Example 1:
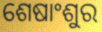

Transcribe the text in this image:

ଶେଷାଂଶୁର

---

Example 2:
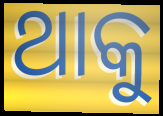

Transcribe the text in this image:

ଥାକୁ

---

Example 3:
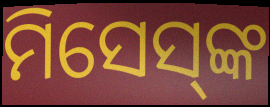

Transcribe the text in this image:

ମିସେସ୍‌ଙ୍କ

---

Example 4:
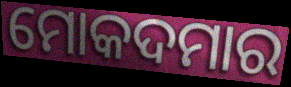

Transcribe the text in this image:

ମୋକଦମାର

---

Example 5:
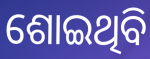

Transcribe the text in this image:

ଶୋଇଥିବି